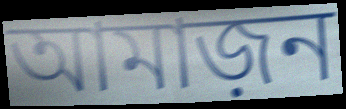
আমাজ়ন